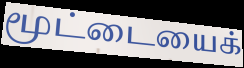
மூட்டையைக்